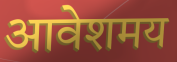
आवेशमय